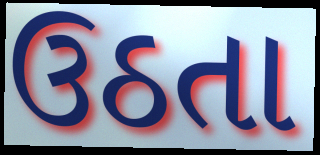
ઉઠતા